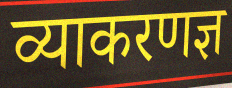
व्याकरणज्ञ